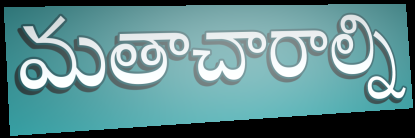
మతాచారాల్ని